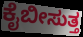
ಕೈಬೀಸುತ್ತ